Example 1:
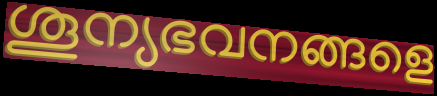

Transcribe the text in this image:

ശൂന്യഭവനങ്ങളെ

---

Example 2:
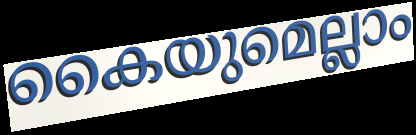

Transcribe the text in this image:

കൈയുമെല്ലാം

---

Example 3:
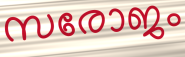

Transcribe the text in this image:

സരോജം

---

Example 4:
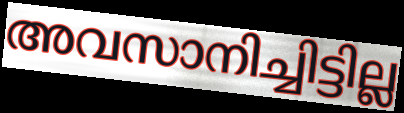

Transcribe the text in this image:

അവസാനിച്ചിട്ടില്ല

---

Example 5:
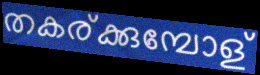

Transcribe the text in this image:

തകര്ക്കുമ്പോള്